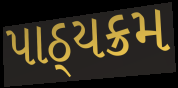
પાઠ્યક્રમ